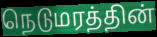
நெடுமரத்தின்